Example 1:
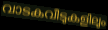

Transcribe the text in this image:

വാടകവീടുകളിലും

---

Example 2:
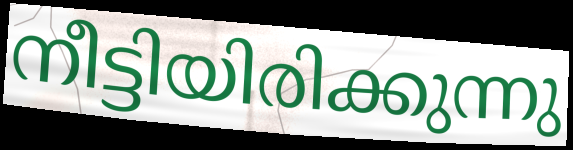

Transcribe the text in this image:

നീട്ടിയിരിക്കുന്നു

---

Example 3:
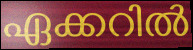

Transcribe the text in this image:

ഏക്കറിൽ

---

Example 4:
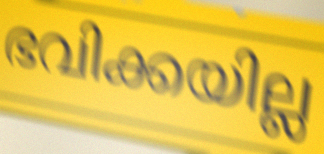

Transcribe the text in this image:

ഭവിക്കയില്ല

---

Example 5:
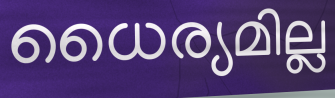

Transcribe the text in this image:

ധൈര്യമില്ല